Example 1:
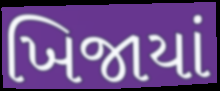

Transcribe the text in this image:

ખિજાયાં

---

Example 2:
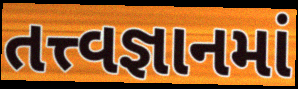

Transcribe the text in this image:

તત્ત્વજ્ઞાનમાં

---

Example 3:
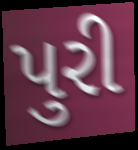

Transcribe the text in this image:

પુરી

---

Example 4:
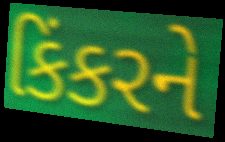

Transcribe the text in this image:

કિંકરને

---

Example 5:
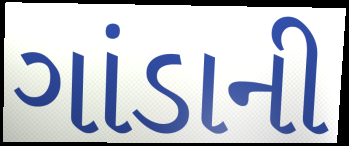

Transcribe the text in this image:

ગાંડાની